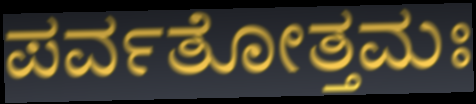
ಪರ್ವತೋತ್ತಮಃ